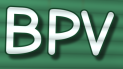
BPV